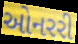
ઓનરરી